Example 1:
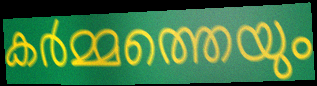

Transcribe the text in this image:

കർമ്മത്തെയും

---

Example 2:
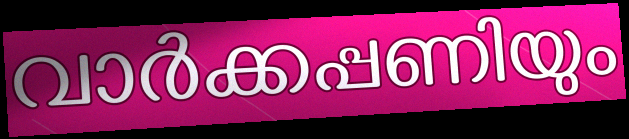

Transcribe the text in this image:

വാർക്കപ്പണിയും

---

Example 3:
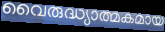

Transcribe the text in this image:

വൈരുദ്ധ്യാത്മകമായ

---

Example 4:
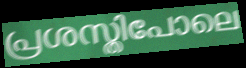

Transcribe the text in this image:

പ്രശസ്തിപോലെ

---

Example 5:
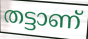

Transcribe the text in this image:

തട്ടാണ്